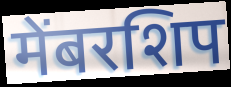
मेंबरशिप